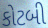
કોટબી